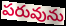
పరువును